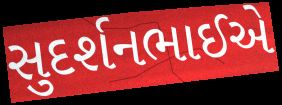
સુદર્શનભાઈએ